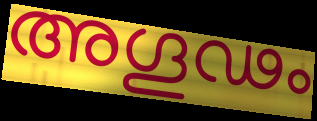
അഗൂഢം